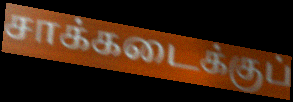
சாக்கடைக்குப்